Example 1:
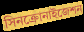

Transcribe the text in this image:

সিনক্রোনাইজেশন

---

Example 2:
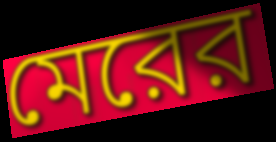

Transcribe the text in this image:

মেরের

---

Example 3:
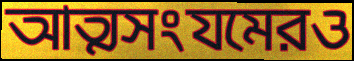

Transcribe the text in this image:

আত্মসংযমেরও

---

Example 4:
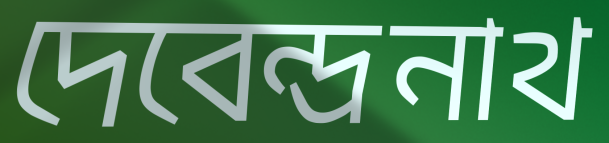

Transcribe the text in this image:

দেবেন্দ্রনাথ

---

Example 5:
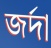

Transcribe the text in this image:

জর্দা